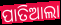
ପାତିଆଲା